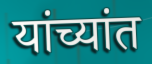
यांच्यांत